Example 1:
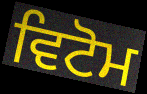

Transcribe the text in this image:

ਵਿਟੋਮ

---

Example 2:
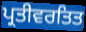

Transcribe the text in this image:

ਪ੍ਰਤੀਵਰਤਿਤ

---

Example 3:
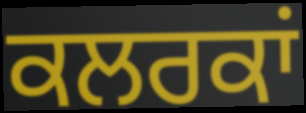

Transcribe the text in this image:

ਕਲਰਕਾਂ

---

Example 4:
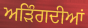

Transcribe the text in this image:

ਅੜਿੰਗਦੀਆਂ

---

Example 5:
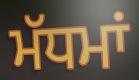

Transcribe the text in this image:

ਮੱਧਮਾਂ